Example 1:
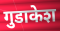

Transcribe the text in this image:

गुडाकेश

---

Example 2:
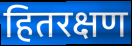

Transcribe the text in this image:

हितरक्षण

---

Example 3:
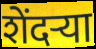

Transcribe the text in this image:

शेंदर्‍या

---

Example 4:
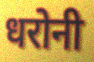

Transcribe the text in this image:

धरोनी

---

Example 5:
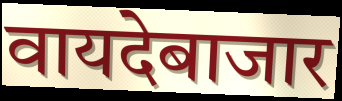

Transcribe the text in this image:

वायदेबाजार